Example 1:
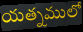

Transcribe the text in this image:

యత్నములో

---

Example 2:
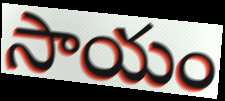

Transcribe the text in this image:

సాయం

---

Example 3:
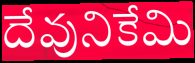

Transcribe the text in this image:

దేవునికేమి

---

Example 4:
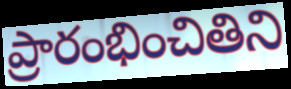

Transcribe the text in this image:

ప్రారంభించితిని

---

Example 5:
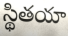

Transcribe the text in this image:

స్థితయా